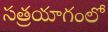
సత్రయాగంలో